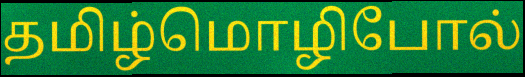
தமிழ்மொழிபோல்